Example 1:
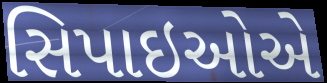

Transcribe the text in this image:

સિપાઇઓએ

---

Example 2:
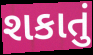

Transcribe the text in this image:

શકાતું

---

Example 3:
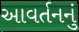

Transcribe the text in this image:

આવર્તનનું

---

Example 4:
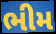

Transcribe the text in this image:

ભીમ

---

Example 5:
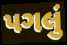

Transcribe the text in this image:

પગલું